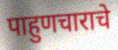
पाहुणचाराचे